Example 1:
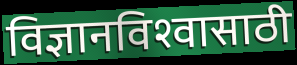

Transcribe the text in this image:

विज्ञानविश्वासाठी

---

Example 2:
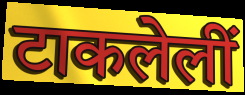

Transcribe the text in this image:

टाकलेलीं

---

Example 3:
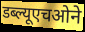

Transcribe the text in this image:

डब्ल्यूएचओने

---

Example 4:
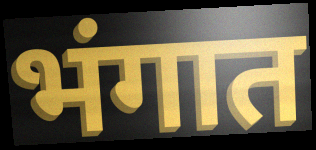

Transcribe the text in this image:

भंगात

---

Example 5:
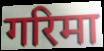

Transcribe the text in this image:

गरिमा